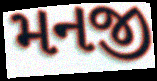
મનજી